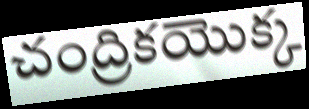
చంద్రికయొక్క